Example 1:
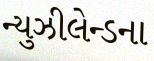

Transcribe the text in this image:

ન્યુઝીલેન્ડના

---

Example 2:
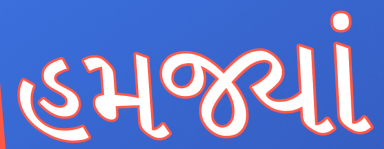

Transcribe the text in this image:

હમજ્યાં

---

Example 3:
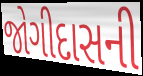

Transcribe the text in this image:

જોગીદાસની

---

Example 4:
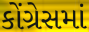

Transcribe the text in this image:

કોંગ્રેસમાં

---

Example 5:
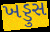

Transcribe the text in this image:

ખડ્ડુસ